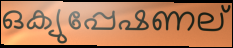
ഒക്യുപ്പേഷണല്